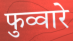
फुव्वारे